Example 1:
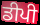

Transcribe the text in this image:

ਡੀਪੀ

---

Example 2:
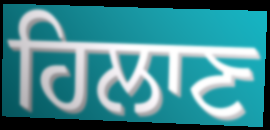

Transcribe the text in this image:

ਹਿਲਾਣ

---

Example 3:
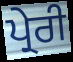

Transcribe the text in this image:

ਪ੍ਰੇਰੀ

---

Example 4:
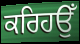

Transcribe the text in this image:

ਕਰਿਹਉਁ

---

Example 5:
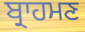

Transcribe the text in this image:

ਬ੍ਰਾਹਮਣ